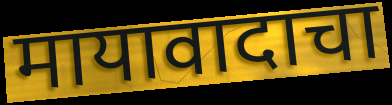
मायावादाचा